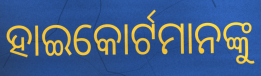
ହାଇକୋର୍ଟମାନଙ୍କୁ